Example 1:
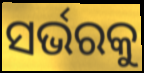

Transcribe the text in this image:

ସର୍ଭରକୁ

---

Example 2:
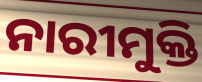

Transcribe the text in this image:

ନାରୀମୁକ୍ତି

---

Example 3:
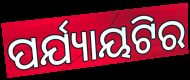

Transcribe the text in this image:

ପର୍ଯ୍ୟାୟଟିର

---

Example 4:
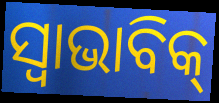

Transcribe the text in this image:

ସ୍ଵାଭାବିକ୍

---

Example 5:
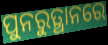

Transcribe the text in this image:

ପୁନରୁତ୍ଥାନରେ